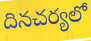
దినచర్యలో